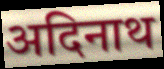
अदिनाथ